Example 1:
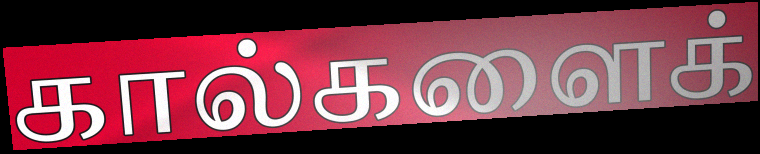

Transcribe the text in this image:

கால்களைக்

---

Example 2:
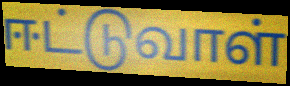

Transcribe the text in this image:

ஈட்டுவாள்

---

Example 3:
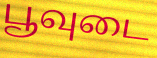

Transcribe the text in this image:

பூவுடை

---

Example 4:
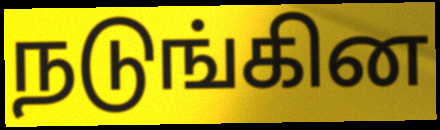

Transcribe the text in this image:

நடுங்கின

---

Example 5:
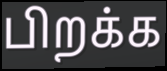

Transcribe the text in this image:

பிறக்க